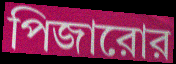
পিজারোর